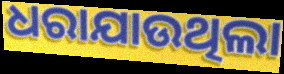
ଧରାଯାଉଥିଲା